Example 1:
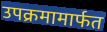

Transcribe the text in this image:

उपक्रमामार्फत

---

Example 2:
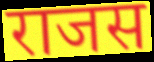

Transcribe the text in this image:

राजस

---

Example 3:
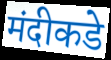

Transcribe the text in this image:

मंदीकडे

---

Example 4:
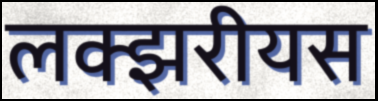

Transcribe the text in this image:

लक्झरीयस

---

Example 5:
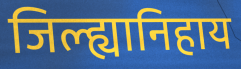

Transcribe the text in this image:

जिल्ह्यानिहाय